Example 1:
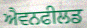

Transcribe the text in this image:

ਐਵਨਫੀਲਡ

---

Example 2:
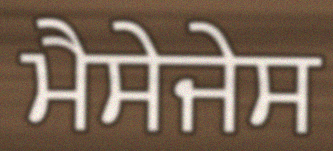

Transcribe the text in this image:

ਮੈਸੇਜੇਸ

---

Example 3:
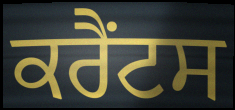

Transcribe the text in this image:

ਕਰੈਂਟਸ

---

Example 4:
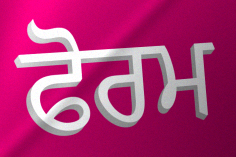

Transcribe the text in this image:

ਫੋਰਮ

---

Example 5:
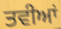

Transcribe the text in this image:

ਤਵੀਆਂ